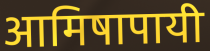
आमिषापायी